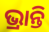
ଭ୍ରାନ୍ତି